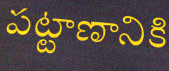
పట్టాణానికి